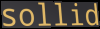
sollid